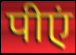
पीएं